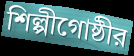
শিল্পীগোষ্ঠীর